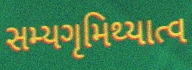
સમ્યગૃમિથ્યાત્વ